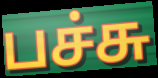
பச்சு